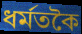
ধৰ্মতকৈ